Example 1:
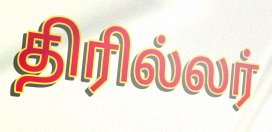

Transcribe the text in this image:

திரில்லர்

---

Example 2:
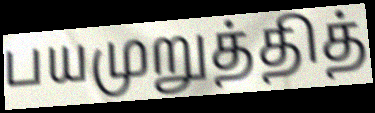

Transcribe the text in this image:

பயமுறுத்தித்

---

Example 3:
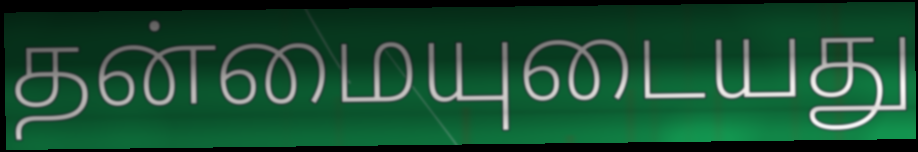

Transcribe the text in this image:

தன்மையுடையது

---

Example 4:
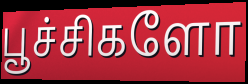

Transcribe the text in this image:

பூச்சிகளோ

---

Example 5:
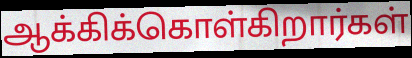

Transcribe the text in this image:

ஆக்கிக்கொள்கிறார்கள்